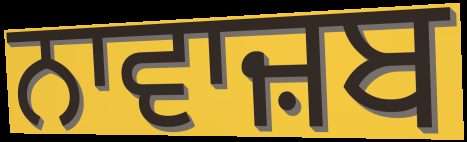
ਨਾਵਾਜ਼ਬ